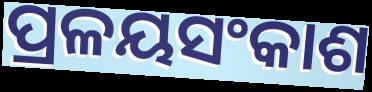
ପ୍ରଳୟସଂକାଶ